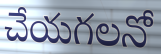
చేయగలనో